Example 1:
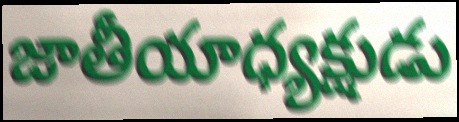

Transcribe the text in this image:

జాతీయాధ్యక్షుడు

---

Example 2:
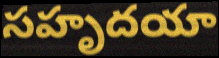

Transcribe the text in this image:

సహృదయా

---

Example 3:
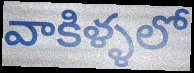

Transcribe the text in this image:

వాకిళ్ళలో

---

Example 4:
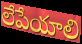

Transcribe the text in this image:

లేపేయాలి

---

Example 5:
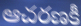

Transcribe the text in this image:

ఆచరణకీ